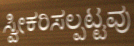
ಸ್ವೀಕರಿಸಲ್ಪಟ್ಟವು